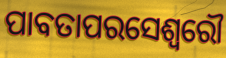
ପାବତାପରସେଶ୍ୱରୌ